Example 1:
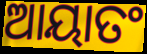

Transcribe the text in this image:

ଆୟାତଂ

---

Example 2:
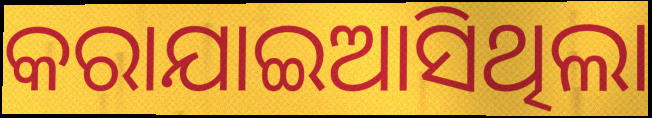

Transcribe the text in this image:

କରାଯାଇଆସିଥିଲା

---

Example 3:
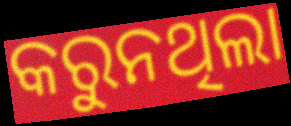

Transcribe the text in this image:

କରୁନଥିଲା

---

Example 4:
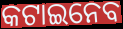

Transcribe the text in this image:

କଟାଇନେବ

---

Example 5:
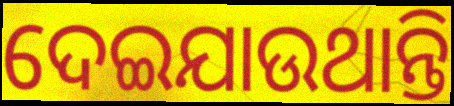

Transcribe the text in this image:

ଦେଇଯାଉଥାନ୍ତି